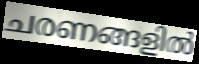
ചരണങ്ങളിൽ